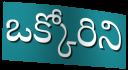
ఒక్కోరిని